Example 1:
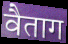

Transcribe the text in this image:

वैताग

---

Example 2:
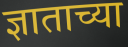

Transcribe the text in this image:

ज्ञाताच्या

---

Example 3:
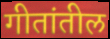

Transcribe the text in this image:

गीतांतील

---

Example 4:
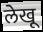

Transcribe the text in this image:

लेखू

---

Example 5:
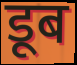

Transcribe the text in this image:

डूब